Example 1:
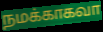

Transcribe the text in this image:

நமக்காகவா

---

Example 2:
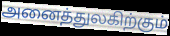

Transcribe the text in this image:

அனைத்துலகிற்கும்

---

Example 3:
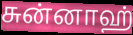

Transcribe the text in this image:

சுன்னாஹ்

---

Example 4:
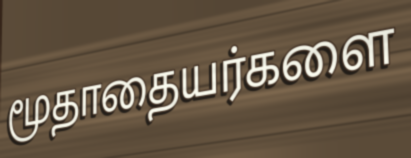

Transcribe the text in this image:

மூதாதையர்களை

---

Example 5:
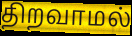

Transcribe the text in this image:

திறவாமல்